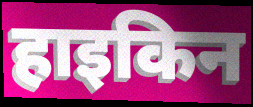
हाइकिन